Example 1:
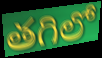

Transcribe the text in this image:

తగిలో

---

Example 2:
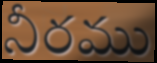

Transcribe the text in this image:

నీరము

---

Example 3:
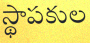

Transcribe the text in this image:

స్థాపకుల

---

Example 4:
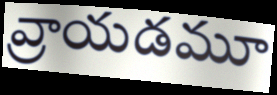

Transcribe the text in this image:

వ్రాయడమూ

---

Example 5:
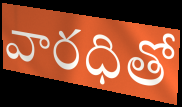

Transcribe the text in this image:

వారధితో